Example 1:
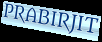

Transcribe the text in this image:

PRABIRJIT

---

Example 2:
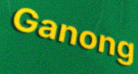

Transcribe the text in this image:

Ganong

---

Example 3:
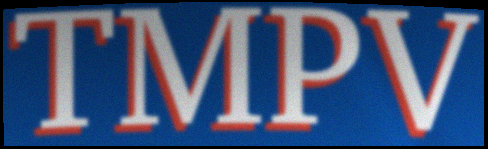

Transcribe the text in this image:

TMPV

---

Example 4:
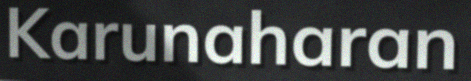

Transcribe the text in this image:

Karunaharan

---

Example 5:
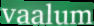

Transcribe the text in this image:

vaalum